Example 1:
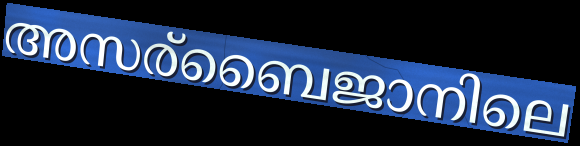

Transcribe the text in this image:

അസര്ബൈജാനിലെ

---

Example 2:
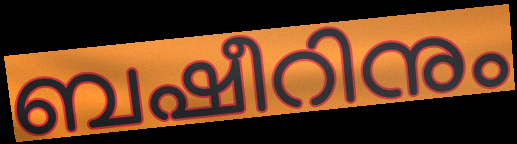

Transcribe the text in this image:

ബഷീറിനും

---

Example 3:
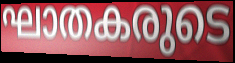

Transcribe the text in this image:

ഘാതകരുടെ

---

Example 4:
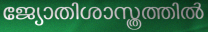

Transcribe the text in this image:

ജ്യോതിശാസ്ത്രത്തിൽ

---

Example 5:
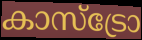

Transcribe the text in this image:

കാസ്ട്രോ